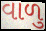
વાળુ